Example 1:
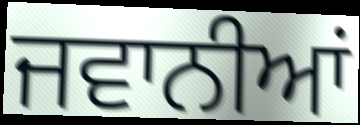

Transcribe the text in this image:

ਜਵਾਨੀਆਂ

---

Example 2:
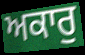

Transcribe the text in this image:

ਅਕਾਰੁ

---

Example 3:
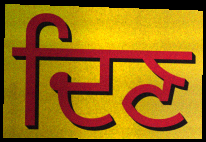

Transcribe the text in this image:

ਦਿਣ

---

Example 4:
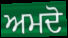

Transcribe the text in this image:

ਅਮਦੋ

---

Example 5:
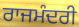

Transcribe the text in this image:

ਰਾਜਮੰਦਰੀ